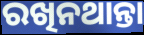
ରଖିନଥାନ୍ତା